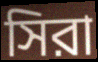
সিরা